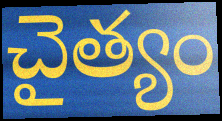
చైత్యం